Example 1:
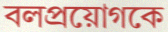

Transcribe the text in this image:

বলপ্রয়োগকে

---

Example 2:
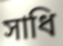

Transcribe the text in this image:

সাধি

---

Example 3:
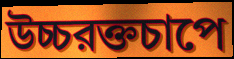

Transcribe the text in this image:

উচ্চরক্তচাপে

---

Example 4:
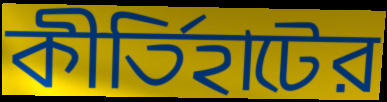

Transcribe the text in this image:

কীর্তিহাটের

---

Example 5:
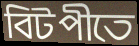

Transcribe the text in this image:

বিটপীতে